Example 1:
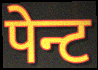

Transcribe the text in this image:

पेन्ट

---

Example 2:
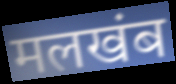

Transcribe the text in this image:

मलखंब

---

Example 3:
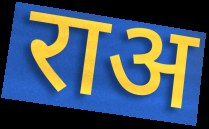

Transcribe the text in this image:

राअ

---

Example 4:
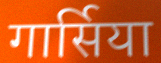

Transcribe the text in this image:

गार्सिया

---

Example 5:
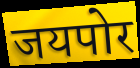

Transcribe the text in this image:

जयपोर